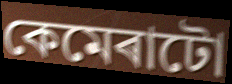
কেমেৰাটো